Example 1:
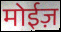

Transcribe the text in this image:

मोईज़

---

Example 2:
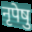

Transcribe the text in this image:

नृपेषु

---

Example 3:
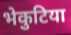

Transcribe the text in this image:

भेकुटिया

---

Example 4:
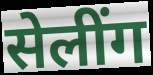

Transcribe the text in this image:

सेलींग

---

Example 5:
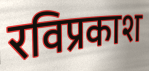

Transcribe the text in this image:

रविप्रकाश